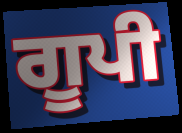
ਗੂਪੀ